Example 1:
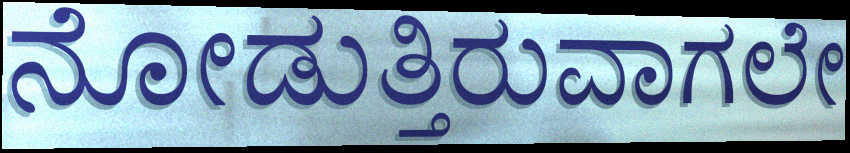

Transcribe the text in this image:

ನೋಡುತ್ತಿರುವಾಗಲೇ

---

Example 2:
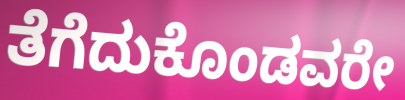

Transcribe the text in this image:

ತೆಗೆದುಕೊಂಡವರೇ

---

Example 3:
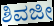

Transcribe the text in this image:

ಶಿವಜೀ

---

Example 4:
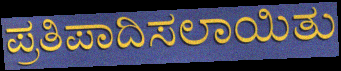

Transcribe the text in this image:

ಪ್ರತಿಪಾದಿಸಲಾಯಿತು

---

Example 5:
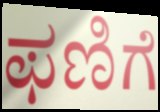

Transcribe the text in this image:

ಫಣಿಗೆ